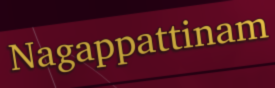
Nagappattinam